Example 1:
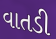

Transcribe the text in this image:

વાતડી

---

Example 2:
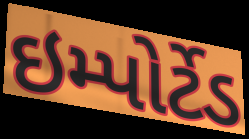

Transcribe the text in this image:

ઇમ્પોર્ટેડ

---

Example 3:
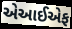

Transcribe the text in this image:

એઆઈએફ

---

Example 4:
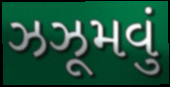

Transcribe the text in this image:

ઝઝૂમવું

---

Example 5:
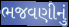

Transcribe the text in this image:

ભજવણીનું